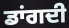
ਡਾਂਗਦੀ